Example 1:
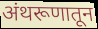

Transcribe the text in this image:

अंथरूणातून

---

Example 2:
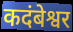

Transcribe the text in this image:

कदंबेश्वर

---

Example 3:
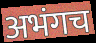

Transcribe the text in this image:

अभंगच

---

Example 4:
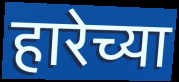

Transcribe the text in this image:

हारेच्या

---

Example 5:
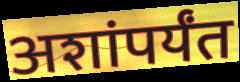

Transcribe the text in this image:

अशांपर्यंत